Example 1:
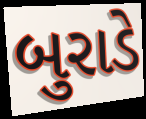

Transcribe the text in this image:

બુરાડે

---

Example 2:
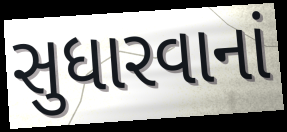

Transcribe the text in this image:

સુધારવાનાં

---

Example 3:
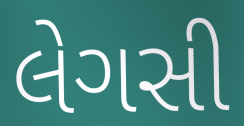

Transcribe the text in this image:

લેગસી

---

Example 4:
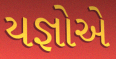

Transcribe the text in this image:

યજ્ઞોએ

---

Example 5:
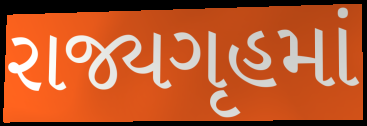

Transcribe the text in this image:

રાજ્યગૃહમાં